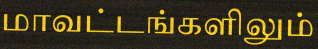
மாவட்டங்களிலும்